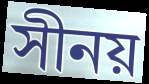
সীনয়